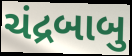
ચંદ્રબાબુ